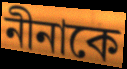
নীনাকে